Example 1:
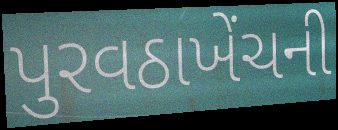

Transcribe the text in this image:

પુરવઠાખેંચની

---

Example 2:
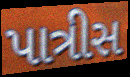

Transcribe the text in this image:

પાત્રીસ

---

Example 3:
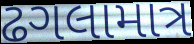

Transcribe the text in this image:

ઢગલામાત્ર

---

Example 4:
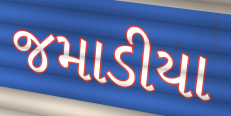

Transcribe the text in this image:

જમાડીયા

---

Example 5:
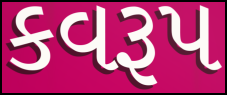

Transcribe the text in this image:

કવરૂપ